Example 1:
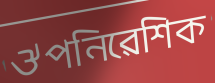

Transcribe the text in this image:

ঔপনিৱেশিক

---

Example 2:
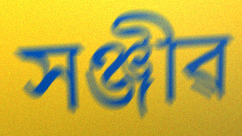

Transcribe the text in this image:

সঞ্জীৱ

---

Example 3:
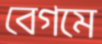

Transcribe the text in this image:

বেগমে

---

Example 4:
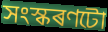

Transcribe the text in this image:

সংস্কৰণটো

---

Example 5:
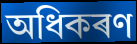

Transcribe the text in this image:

অধিকৰণ